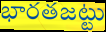
భారతజట్టు